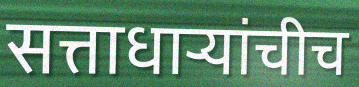
सत्ताधाऱ्यांचीच